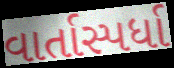
વાર્તાસ્પર્ધા